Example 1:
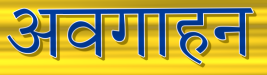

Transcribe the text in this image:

अवगाहन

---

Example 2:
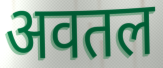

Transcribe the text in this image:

अवतल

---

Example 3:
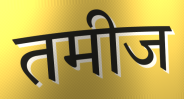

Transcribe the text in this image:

तमीज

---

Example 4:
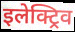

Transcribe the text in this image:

इलेक्ट्रिव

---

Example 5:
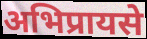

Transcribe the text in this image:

अभिप्रायसे